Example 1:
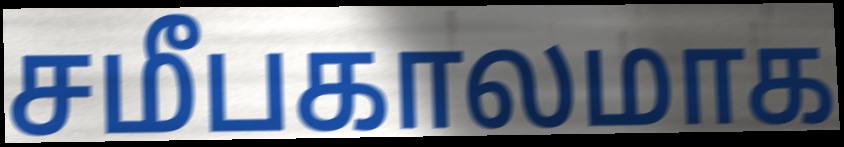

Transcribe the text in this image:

சமீபகாலமாக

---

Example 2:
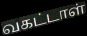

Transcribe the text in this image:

வகட்டாள்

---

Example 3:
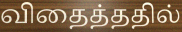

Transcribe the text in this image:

விதைத்ததில்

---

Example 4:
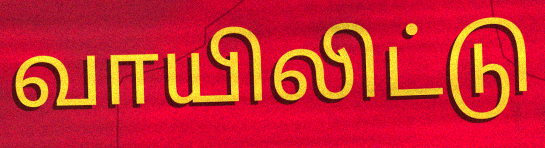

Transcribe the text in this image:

வாயிலிட்டு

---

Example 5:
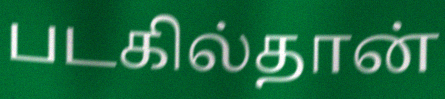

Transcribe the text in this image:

படகில்தான்